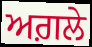
ਅਗ਼ਲੇ